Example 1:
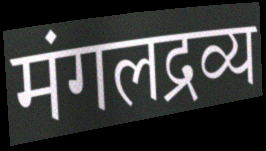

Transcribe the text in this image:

मंगलद्रव्य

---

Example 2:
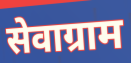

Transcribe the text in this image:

सेवाग्राम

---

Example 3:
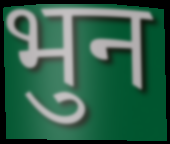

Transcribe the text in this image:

भुन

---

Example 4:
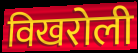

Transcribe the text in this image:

विखरोली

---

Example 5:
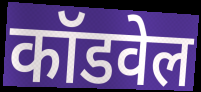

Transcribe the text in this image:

कॉडवेल